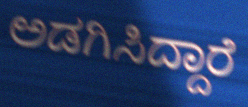
ಅಡಗಿಸಿದ್ದಾರೆ